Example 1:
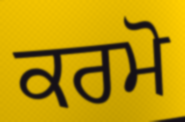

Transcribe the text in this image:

ਕਰਮੋ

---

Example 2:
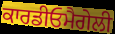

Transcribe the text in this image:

ਕਾਰਡੀਓਮੈਗੇਲੀ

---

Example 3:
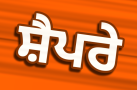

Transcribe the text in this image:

ਸ਼ੈਪਰੇ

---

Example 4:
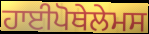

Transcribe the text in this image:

ਹਾਈਪੋਥੇਲੇਮਸ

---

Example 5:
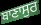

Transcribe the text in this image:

ਬਾਣਾਸੁਰ